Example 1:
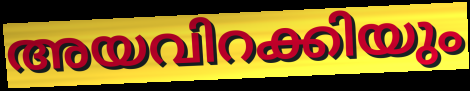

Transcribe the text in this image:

അയവിറക്കിയും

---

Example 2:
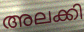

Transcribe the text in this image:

അലക്കി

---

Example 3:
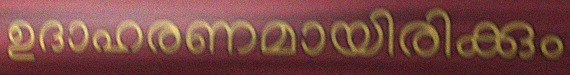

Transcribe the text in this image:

ഉദാഹരണമായിരിക്കും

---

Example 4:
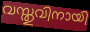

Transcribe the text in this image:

വസ്തുവിനായി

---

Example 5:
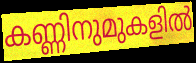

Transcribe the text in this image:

കണ്ണിനുമുകളിൽ